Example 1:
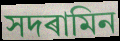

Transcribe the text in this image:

সদৰামিন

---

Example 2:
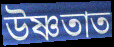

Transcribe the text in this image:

উষ্ণতাত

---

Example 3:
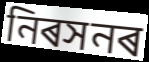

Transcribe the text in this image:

নিৰসনৰ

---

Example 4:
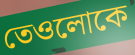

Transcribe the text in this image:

তেওলোকে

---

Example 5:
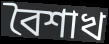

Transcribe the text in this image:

বৈশাখ